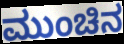
ಮುಂಚಿನ